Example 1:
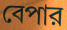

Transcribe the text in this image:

বেপার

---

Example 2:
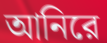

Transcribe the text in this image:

আনিরে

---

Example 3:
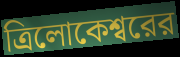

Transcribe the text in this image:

ত্রিলোকেশ্বরের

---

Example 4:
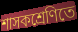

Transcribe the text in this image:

শাসকশ্রেণিতে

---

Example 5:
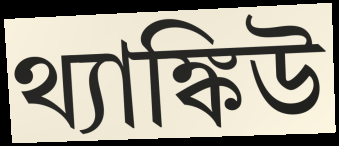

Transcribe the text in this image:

থ্যাঙ্কিউ